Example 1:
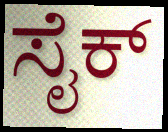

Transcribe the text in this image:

ಸೈಕ್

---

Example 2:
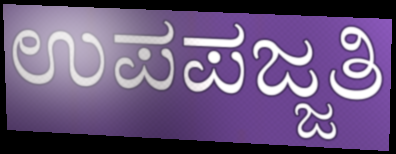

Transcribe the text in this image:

ಉಪಪಜ್ಜತಿ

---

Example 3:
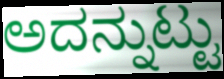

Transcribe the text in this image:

ಅದನ್ನುಟ್ಟು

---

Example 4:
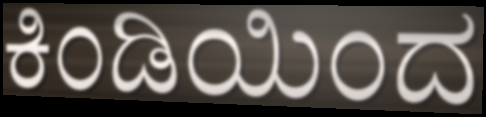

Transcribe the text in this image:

ಕಿಂಡಿಯಿಂದ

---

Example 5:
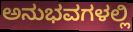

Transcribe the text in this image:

ಅನುಭವಗಳಲ್ಲಿ